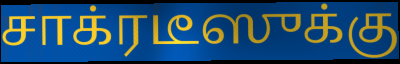
சாக்ரடீஸுக்கு